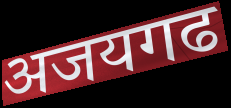
अजयगढ